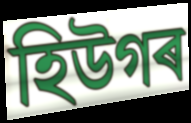
হিউগৰ